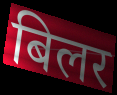
बिलर